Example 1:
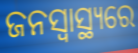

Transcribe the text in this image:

ଜନସ୍ଵାସ୍ଥ୍ୟରେ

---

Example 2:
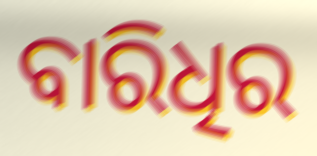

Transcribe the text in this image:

ବାରିଧିର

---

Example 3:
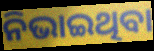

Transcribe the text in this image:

ନିଭାଇଥିବା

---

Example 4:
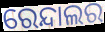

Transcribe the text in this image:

ରେନ୍ଦାଲର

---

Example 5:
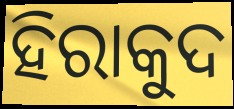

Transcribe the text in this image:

ହିରାକୁଦ